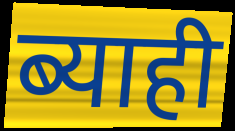
ब्याही